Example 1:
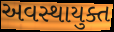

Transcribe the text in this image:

અવસ્થાયુક્ત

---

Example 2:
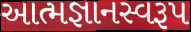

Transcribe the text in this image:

આત્મજ્ઞાનસ્વરૂપ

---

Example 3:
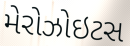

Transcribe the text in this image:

મેરોઝોઇટસ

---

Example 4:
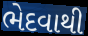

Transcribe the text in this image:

ભેદવાથી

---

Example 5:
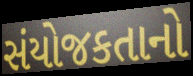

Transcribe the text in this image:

સંયોજકતાનો